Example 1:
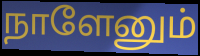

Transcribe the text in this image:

நாளேனும்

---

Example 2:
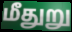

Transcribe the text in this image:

மீதுறு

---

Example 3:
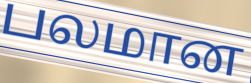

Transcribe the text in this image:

பலமான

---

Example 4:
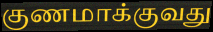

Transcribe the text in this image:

குணமாக்குவது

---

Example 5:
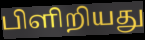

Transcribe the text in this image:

பிளிறியது